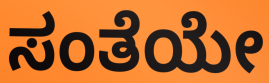
ಸಂತೆಯೇ